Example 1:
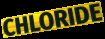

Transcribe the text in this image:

CHLORIDE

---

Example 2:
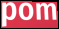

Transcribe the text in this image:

pom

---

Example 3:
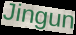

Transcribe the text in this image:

Jingun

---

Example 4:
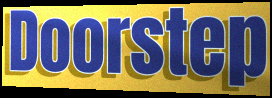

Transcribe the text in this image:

Doorstep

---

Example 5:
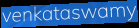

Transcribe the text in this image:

venkataswamy